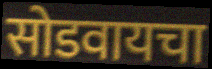
सोडवायचा